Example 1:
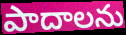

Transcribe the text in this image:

పాదాలను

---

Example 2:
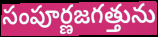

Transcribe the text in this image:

సంపూర్ణజగత్తును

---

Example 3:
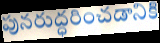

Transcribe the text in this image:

పునరుద్ధరించడానికి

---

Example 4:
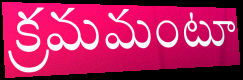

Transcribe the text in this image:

క్రమమంటూ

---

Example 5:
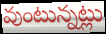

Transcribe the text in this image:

వుంటున్నట్లు